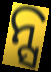
ନ୍ସ